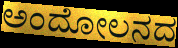
ಅಂದೋಲನದ